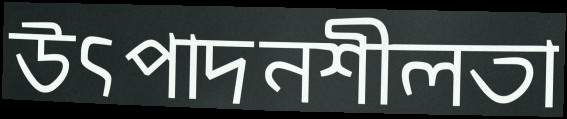
উৎপাদনশীলতা